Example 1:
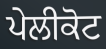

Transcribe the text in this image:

ਪੇਲੀਕੋਟ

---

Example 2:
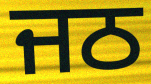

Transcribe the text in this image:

ਜਠ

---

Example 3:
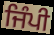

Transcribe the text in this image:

ਜਿੰਪੀ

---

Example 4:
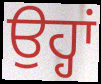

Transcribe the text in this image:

ਉਹ੍ਹਾਂ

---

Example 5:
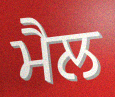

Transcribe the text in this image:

ਮੈਲ